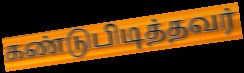
கண்டுபிடித்தவர்